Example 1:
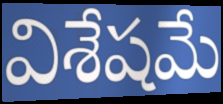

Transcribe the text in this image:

విశేషమే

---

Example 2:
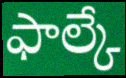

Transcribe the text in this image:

ఫాల్కే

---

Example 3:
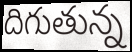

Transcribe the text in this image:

దిగుతున్న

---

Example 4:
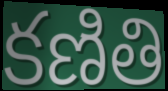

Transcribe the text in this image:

కణితి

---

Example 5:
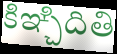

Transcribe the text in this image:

కిఞ్చిదితి